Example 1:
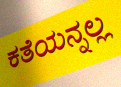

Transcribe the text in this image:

ಕತೆಯನ್ನಲ್ಲ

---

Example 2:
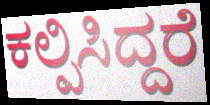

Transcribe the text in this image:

ಕಲ್ಪಿಸಿದ್ದರೆ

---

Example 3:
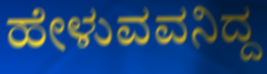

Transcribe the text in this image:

ಹೇಳುವವನಿದ್ದ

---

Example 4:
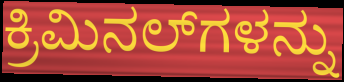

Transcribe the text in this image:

ಕ್ರಿಮಿನಲ್‍ಗಳನ್ನು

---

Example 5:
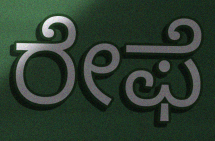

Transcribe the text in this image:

ರೇಫೆ